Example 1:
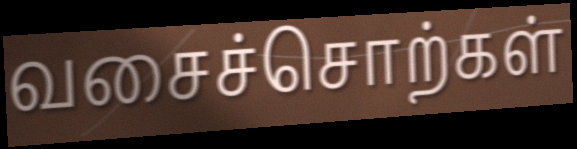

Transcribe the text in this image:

வசைச்சொற்கள்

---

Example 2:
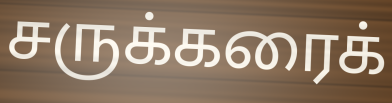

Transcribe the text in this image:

சருக்கரைக்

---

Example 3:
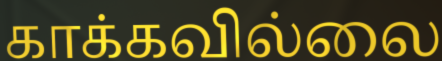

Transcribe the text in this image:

காக்கவில்லை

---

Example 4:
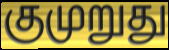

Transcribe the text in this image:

குமுறுது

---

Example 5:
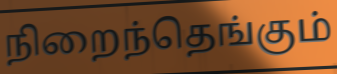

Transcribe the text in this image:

நிறைந்தெங்கும்